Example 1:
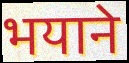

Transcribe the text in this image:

भयाने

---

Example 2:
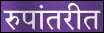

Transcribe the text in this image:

रुपांतरीत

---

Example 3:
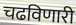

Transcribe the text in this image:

चढविणारी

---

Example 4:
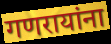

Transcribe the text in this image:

गणरायांना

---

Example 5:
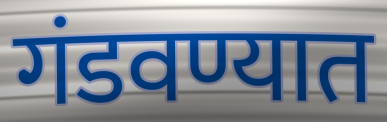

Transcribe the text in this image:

गंडवण्यात